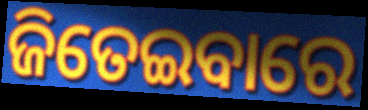
ଜିତେଇବାରେ